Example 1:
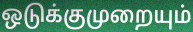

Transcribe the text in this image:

ஒடுக்குமுறையும்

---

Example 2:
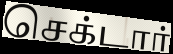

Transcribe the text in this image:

செக்டார்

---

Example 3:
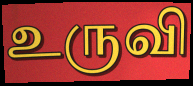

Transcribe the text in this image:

உருவி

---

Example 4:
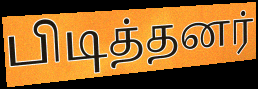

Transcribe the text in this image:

பிடித்தனர்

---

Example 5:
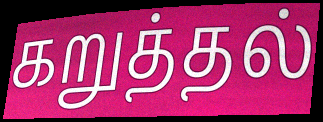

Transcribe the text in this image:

கறுத்தல்